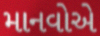
માનવોએ